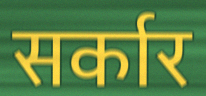
सर्कार